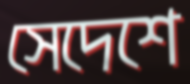
সেদেশে